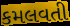
કમલવતી